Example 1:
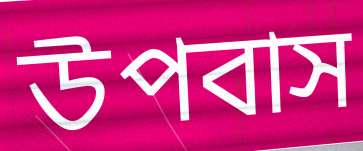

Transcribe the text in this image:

উপবাস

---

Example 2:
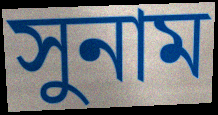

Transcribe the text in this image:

সুনাম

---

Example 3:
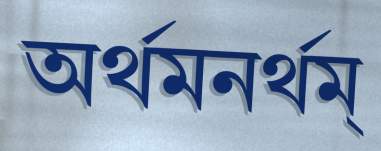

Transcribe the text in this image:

অর্থমনর্থম্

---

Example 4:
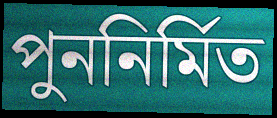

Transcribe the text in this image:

পুননির্মিত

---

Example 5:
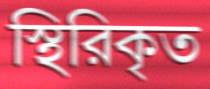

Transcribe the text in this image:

স্থিরিকৃত